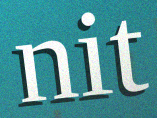
nit